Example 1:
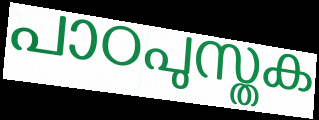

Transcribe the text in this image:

പാഠപുസ്തക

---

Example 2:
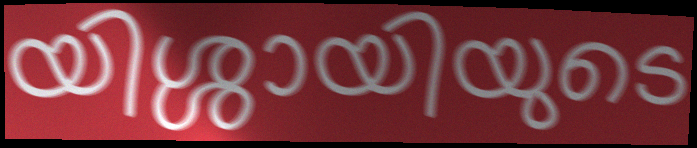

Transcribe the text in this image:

യിശ്ശായിയുടെ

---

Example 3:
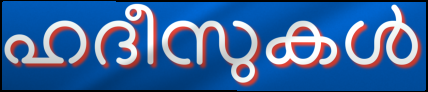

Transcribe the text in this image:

ഹദീസുകൾ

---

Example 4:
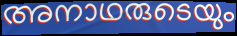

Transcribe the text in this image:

അനാഥരുടെയും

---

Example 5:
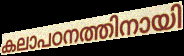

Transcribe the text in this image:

കലാപഠനത്തിനായി